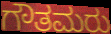
ಗೌತಮರು